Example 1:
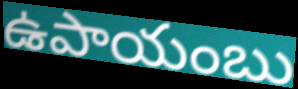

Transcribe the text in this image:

ఉపాయంబు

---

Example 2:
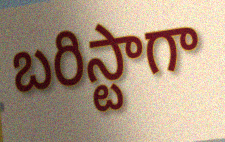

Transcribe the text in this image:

బరిస్టాగా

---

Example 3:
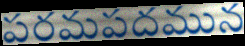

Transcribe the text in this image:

పరమపదమున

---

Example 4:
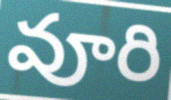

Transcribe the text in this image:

వూరి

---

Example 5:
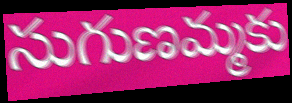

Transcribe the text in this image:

సుగుణమ్మకు